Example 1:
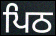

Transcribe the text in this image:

ਪਿਠ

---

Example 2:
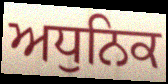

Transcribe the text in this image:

ਅਧੁਨਿਕ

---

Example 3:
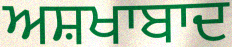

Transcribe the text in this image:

ਅਸ਼ਖਾਬਾਦ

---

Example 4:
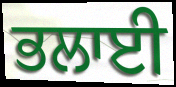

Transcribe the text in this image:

ਭਲਾਈ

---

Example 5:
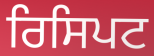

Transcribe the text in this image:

ਰਿਸਿਪਟ